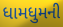
ધામધુમની